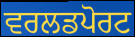
ਵਰਲਡਪੋਰਟ